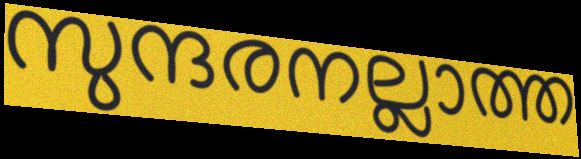
സുന്ദരനല്ലാത്ത